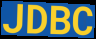
JDBC